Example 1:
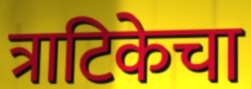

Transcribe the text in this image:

त्राटिकेचा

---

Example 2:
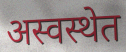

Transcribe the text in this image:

अस्वस्थेत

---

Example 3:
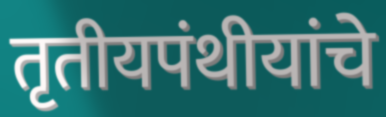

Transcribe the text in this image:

तृतीयपंथीयांचे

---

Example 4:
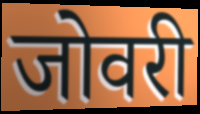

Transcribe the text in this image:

जोवरी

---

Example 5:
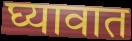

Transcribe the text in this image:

घ्यावात